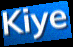
Kiye